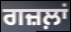
ਗਜ਼ਲ਼ਾਂ